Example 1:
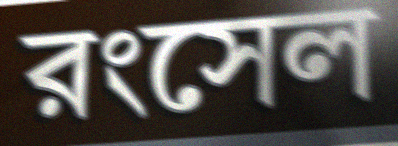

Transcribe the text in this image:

রংসেল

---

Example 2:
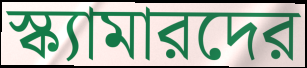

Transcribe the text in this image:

স্ক্যামারদের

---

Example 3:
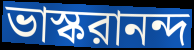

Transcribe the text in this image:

ভাস্করানন্দ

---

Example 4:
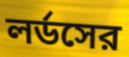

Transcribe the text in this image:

লর্ডসের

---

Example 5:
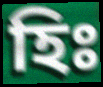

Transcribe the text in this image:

হিঃ